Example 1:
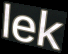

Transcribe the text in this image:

lek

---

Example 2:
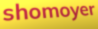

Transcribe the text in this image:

shomoyer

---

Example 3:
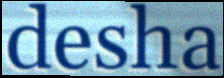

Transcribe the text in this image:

desha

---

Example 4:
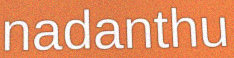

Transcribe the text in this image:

nadanthu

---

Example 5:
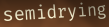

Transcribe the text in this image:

semidrying